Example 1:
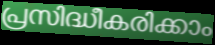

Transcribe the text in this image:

പ്രസിദ്ധീകരിക്കാം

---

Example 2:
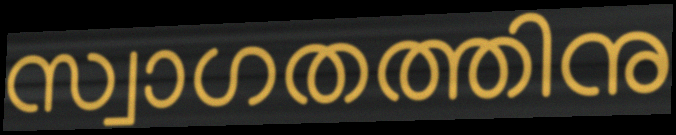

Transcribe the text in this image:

സ്വാഗതത്തിനു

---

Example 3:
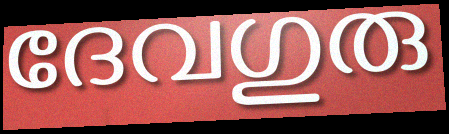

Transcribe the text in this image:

ദേവഗുരു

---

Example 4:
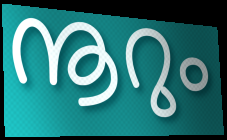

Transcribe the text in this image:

നൂറും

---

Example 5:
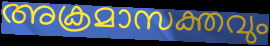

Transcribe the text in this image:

അക്രമാസക്തവും